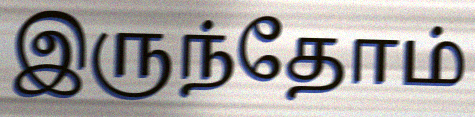
இருந்தோம்